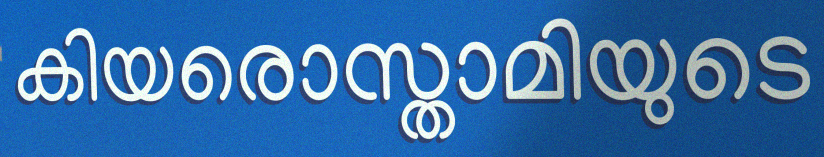
കിയരൊസ്താമിയുടെ